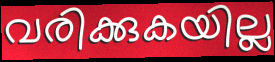
വരിക്കുകയില്ല